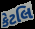
કેટલિ